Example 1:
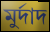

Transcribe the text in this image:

মুৰ্দাদ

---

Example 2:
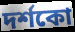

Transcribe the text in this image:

দৰ্শকো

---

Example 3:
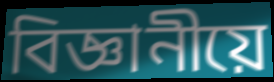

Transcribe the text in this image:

বিজ্ঞানীয়ে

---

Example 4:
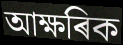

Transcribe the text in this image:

আক্ষৰিক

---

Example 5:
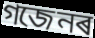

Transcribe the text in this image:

গজেনৰ